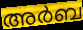
അർബ